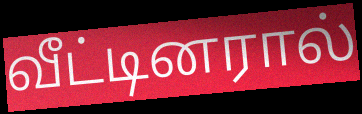
வீட்டினரால்